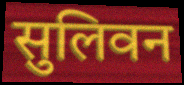
सुलिवन